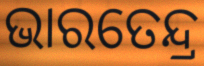
ଭାରତେନ୍ଦ୍ର